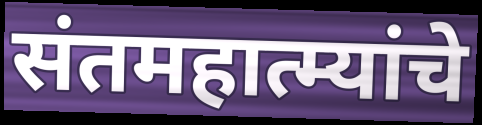
संतमहात्म्यांचे